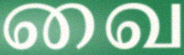
வை